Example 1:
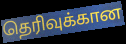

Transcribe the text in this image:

தெரிவுக்கான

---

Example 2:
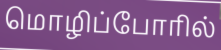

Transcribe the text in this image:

மொழிப்போரில்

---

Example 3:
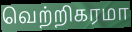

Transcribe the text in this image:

வெற்றிகரமா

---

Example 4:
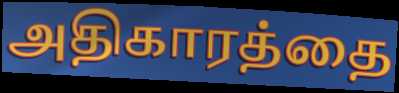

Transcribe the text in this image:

அதிகாரத்தை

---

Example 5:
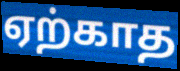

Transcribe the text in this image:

ஏற்காத